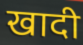
खादी